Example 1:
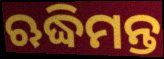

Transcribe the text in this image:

ଋଦ୍ଧିମନ୍ତ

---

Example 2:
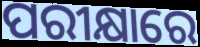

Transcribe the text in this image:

ପରୀକ୍ଷାରେ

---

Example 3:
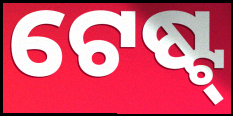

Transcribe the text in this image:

ଟେଷ୍ଟ୍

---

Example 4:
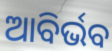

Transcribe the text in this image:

ଆବିର୍ଭବ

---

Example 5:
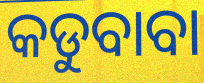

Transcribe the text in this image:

କଡୁବାବା